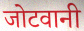
जोटवानी